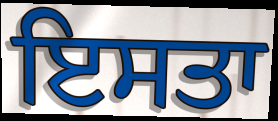
ਇਸਤਾ